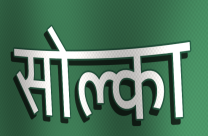
सोल्का